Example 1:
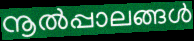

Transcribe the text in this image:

നൂൽപ്പാലങ്ങൾ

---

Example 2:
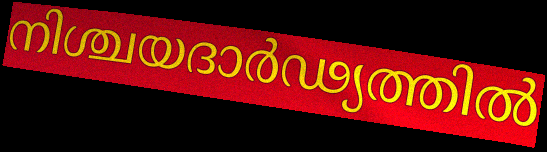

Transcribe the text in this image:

നിശ്ചയദാർഢ്യത്തിൽ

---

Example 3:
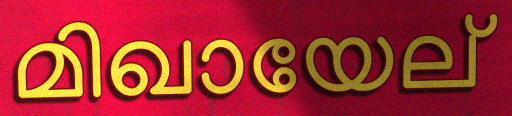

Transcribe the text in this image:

മിഖായേല്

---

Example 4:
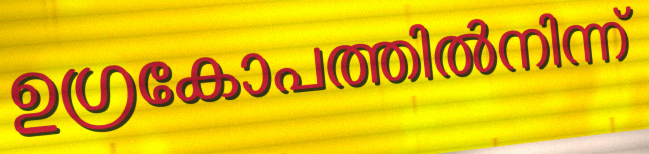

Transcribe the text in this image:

ഉഗ്രകോപത്തിൽനിന്ന്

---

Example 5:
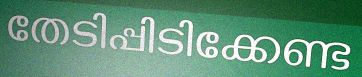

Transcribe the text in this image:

തേടിപ്പിടിക്കേണ്ട